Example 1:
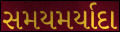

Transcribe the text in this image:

સમયમર્યાદા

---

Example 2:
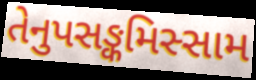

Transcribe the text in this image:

તેનુપસઙ્કમિસ્સામ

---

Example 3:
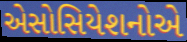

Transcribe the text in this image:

એસોસિયેશનોએ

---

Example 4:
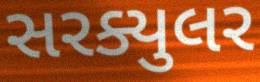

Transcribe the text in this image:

સરક્યુલર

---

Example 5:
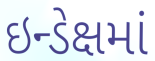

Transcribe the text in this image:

ઇન્ડેક્ષમાં